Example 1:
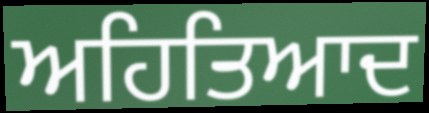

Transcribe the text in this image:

ਅਹਿਤਿਆਦ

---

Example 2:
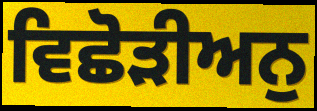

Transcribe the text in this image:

ਵਿਛੋੜੀਅਨੁ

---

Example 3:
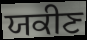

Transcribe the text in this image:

ਯਕੀਣ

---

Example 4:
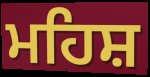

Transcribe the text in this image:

ਮਹਿਸ਼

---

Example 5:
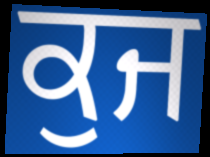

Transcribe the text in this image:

ਕੁਜ